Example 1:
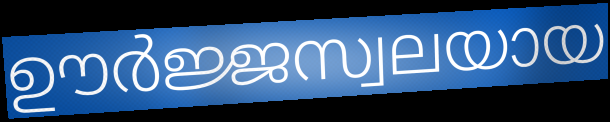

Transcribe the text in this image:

ഊർജ്ജസ്വലയായ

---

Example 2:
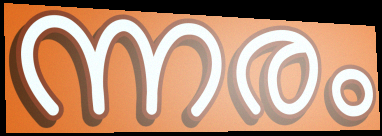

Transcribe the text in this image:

ന്നരം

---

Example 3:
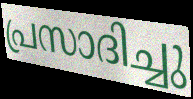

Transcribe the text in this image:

പ്രസാദിച്ചു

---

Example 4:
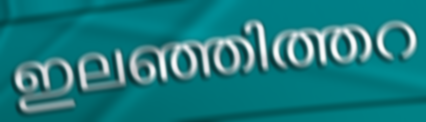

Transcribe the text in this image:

ഇലഞ്ഞിത്തറ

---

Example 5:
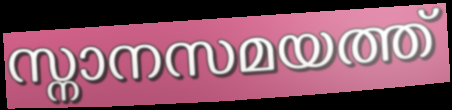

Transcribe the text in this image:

സ്നാനസമയത്ത്